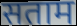
सताम